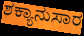
ಶಕ್ಯಾನುಸಾರ